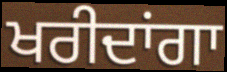
ਖਰੀਦਾਂਗਾ